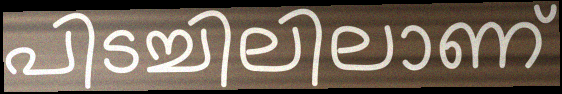
പിടച്ചിലിലാണ്